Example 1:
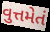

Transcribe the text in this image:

વુત્તમેતં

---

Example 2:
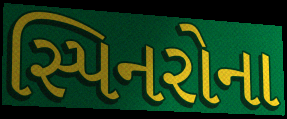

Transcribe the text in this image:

સ્પિનરોના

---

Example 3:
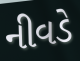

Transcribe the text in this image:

નીવડે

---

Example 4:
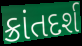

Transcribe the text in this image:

ક્રાંતદર્શ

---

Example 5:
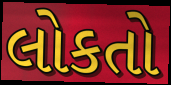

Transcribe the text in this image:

લોકતો